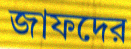
জাফদের